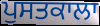
ਪੁਸਤਕਾਲਾ